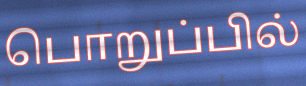
பொறுப்பில்